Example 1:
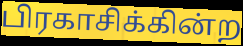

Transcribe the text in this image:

பிரகாசிக்கின்ற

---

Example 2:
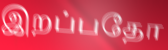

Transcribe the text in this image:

இறப்பதோ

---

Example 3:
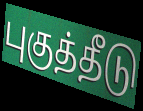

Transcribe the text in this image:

புகுத்தீடு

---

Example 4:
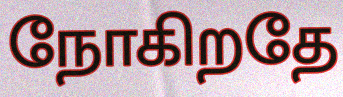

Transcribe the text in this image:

நோகிறதே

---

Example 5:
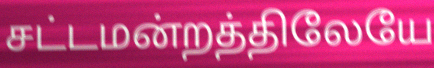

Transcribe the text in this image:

சட்டமன்றத்திலேயே